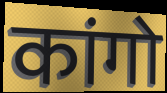
कांगो